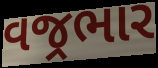
વજ્રભાર